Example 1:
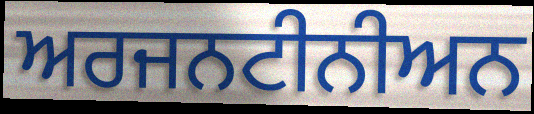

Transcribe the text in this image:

ਅਰਜਨਟੀਨੀਅਨ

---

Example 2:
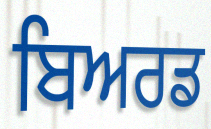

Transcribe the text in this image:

ਬਿਅਰਡ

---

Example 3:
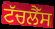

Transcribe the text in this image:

ਟੱਚਲੈੱਸ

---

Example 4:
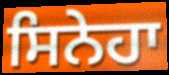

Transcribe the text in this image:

ਸਿਨੇਹਾ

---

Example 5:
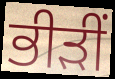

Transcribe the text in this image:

ਭੀੜੀਂ